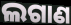
ଲଗାଣ